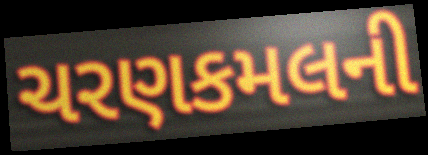
ચરણકમલની